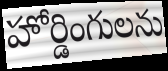
హోర్డింగులను